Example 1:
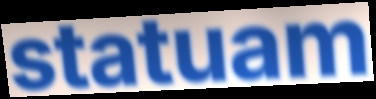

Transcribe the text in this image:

statuam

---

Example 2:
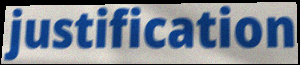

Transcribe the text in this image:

justification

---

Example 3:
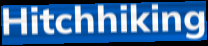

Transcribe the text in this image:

Hitchhiking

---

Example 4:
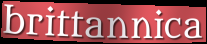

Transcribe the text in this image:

brittannica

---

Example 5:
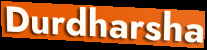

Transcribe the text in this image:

Durdharsha